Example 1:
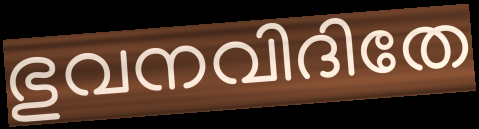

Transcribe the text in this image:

ഭുവനവിദിതേ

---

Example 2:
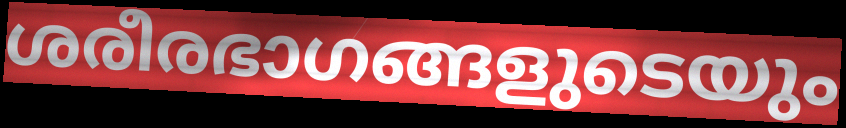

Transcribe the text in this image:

ശരീരഭാഗങ്ങളുടെയും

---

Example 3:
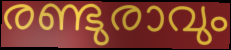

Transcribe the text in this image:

രണ്ടുരാവും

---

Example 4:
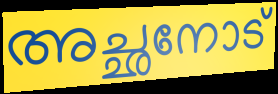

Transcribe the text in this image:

അച്ഛനോട്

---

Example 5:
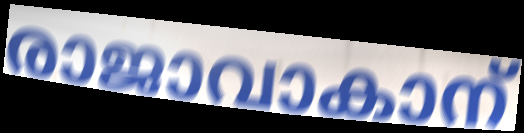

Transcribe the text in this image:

രാജാവാകാന്